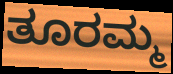
ತೂರಮ್ಮ